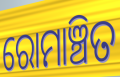
ରୋମାଞ୍ଚିତ